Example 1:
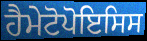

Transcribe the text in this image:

ਹੈਮੇਟੋਪੋਇਸਿਸ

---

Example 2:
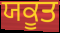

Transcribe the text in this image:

ਯਕੂਤ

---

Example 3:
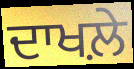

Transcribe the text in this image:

ਦਾਖਲ਼ੇ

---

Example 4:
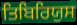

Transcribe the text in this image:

ਤਿਬਿਰਿਯੁਸ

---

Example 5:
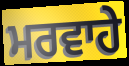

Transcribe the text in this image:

ਮਰਵਾਹੇ